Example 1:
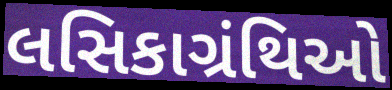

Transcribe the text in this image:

લસિકાગ્રંથિઓ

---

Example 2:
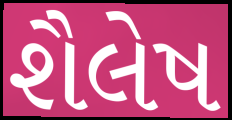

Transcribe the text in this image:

શૈલેષ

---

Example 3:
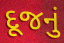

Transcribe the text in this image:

દૂજનું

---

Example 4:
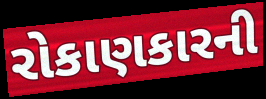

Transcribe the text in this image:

રોકાણકારની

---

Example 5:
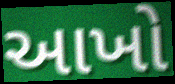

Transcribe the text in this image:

આખો